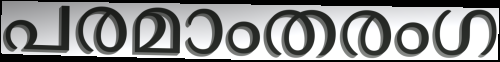
പരമാംതരംഗ